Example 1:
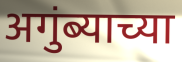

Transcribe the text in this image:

अगुंब्याच्या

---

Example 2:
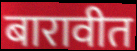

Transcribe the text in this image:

बारावीत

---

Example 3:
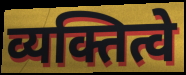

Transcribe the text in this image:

व्यक्तित्वे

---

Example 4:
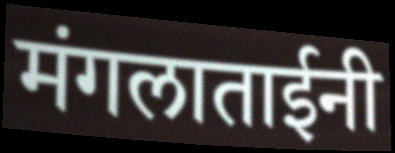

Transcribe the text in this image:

मंगलाताईनी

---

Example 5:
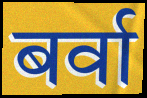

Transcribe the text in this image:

बर्वा